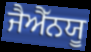
ਜੈਐੱਨਯੂ